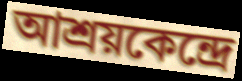
আশ্রয়কেন্দ্রে